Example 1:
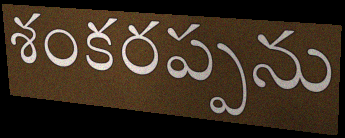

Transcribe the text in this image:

శంకరప్పను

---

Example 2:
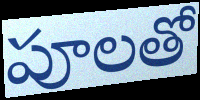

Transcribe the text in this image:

పూలతో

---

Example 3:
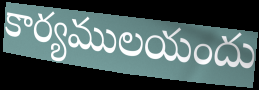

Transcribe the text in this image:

కార్యములయందు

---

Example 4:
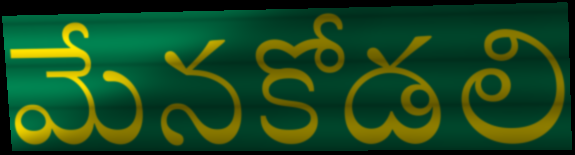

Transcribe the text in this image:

మేనకోడలి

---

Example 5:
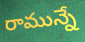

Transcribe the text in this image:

రామున్నే